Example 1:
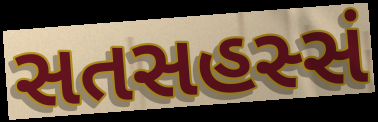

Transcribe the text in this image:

સતસહસ્સં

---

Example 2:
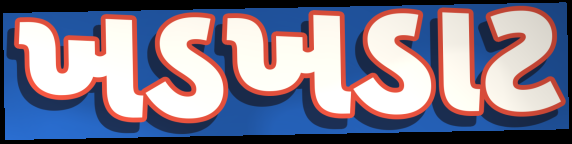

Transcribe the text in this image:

ખડખડાટ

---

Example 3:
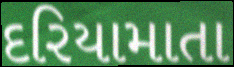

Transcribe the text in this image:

દરિયામાતા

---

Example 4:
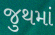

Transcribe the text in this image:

જુથમાં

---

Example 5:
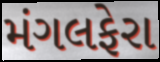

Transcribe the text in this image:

મંગલફેરા